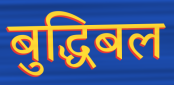
बुद्धिबल